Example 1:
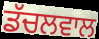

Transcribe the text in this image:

ਡੱਚਲਵਾਲ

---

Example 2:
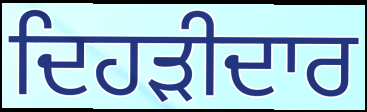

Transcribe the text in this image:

ਦਿਹੜੀਦਾਰ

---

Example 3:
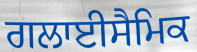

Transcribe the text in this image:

ਗਲਾਈਸੈਮਿਕ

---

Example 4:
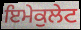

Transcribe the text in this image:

ਇਮੇਕੁਲੇਟ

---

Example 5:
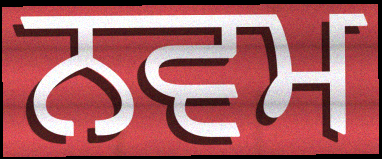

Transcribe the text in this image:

ਨਵਮ